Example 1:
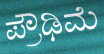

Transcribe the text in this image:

ಪ್ರೌಢಿಮೆ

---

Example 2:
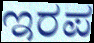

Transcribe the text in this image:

ಇರಪ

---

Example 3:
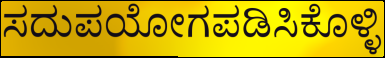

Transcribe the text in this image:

ಸದುಪಯೋಗಪಡಿಸಿಕೊಳ್ಳಿ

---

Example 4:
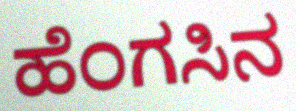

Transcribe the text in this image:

ಹೆಂಗಸಿನ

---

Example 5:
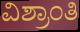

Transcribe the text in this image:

ವಿಶ್ರಾಂತಿ